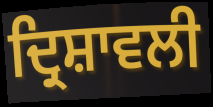
ਦ੍ਰਿਸ਼ਾਵਲੀ